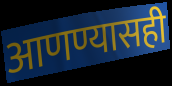
आणण्यासही